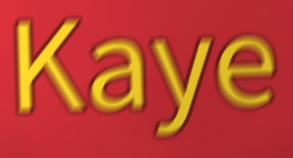
Kaye